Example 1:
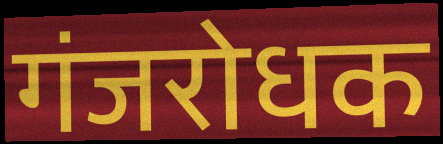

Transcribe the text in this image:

गंजरोधक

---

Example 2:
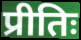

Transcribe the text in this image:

प्रीतिः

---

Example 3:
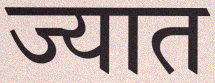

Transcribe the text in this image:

ज्यात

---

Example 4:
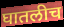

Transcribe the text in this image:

घातलीच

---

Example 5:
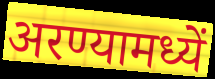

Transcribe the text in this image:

अरण्यामध्यें